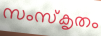
സംസ്കൃതം